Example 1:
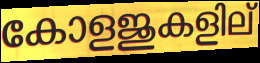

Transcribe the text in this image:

കോളജുകളില്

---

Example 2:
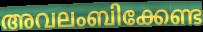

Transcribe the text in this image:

അവലംബിക്കേണ്ട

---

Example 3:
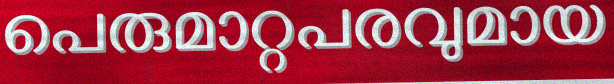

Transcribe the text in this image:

പെരുമാറ്റപരവുമായ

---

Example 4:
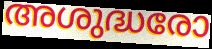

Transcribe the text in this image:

അശുദ്ധരോ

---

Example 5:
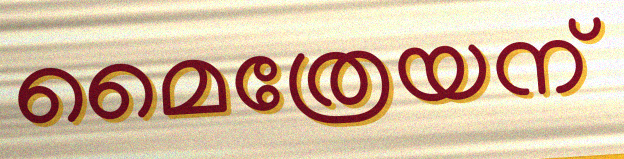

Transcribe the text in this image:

മൈത്രേയന്